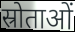
स्रोताओं